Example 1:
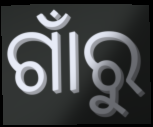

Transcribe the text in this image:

ଗାଁରୁ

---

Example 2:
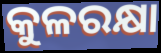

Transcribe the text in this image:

କୁଳରକ୍ଷା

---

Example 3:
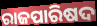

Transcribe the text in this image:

ରାଜପାରିଷଦ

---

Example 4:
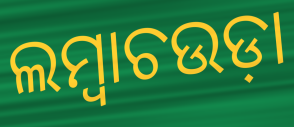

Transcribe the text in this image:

ଲମ୍ୱାଚଉଡ଼ା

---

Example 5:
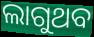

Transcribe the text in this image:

ଲାଗୁଥବ